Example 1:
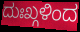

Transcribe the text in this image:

ದುಃಖ್ಗಳಿಂದ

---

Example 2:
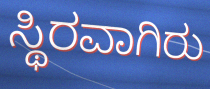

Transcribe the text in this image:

ಸ್ಥಿರವಾಗಿರು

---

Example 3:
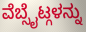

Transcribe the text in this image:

ವೆಬ್ಸೈಟ್ಗಳನ್ನು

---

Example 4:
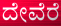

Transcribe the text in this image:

ದೇವೆರೆ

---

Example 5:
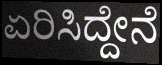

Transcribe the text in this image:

ಏರಿಸಿದ್ದೇನೆ